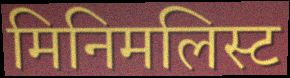
मिनिमलिस्ट